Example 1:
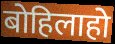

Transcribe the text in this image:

बोहिलाहो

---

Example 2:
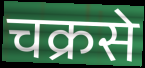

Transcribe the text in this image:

चक्रसे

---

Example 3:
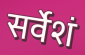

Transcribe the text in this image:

सर्वेशं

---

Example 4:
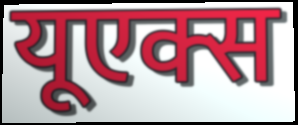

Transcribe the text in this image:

यूएक्स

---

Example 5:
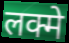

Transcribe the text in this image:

लक्मे